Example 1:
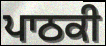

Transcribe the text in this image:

ਪਾਠਕੀ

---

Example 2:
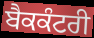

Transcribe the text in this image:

ਬੈਕਕੰਟਰੀ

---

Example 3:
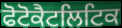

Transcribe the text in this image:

ਫੋਟੋਕੈਟਲਿਟਿਕ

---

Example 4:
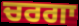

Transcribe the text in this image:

ਚਰਗਾ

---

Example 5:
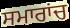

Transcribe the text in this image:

ਸਮਾਰਾਂਚ